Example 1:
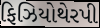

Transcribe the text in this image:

ફિઝિયોથેરપી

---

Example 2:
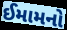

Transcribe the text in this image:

ઈમામનો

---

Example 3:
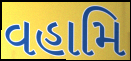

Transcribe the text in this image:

વહામિ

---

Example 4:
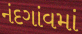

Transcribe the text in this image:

નંદગાંવમાં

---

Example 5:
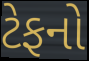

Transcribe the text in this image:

ટેફનો